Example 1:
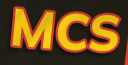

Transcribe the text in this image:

MCS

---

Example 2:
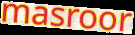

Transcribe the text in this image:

masroor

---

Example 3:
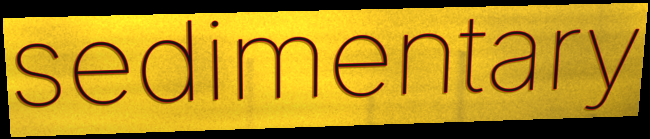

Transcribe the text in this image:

sedimentary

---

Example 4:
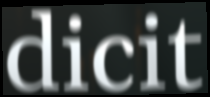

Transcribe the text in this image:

dicit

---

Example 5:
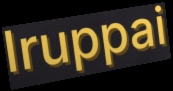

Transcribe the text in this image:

Iruppai